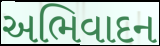
અભિવાદન